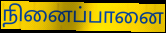
நினைப்பானை